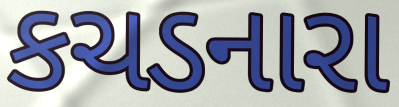
કચડનારા